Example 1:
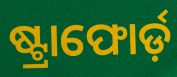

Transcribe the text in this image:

ଷ୍ଟ୍ରାଫୋର୍ଡ଼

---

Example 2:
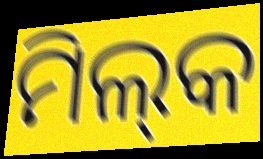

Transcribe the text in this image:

ମିଲ୍‌କ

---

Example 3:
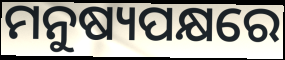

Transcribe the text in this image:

ମନୁଷ୍ୟପକ୍ଷରେ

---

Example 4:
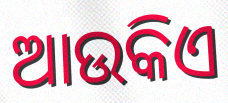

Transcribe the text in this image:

ଆଉକିଏ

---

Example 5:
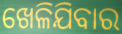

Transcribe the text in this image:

ଖେଳିଯିବାର